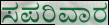
ಸಪರಿವಾರ